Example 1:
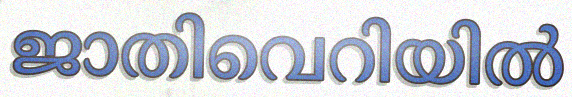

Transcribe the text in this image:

ജാതിവെറിയിൽ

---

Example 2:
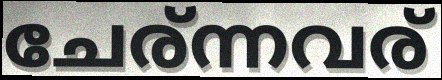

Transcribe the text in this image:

ചേര്ന്നവര്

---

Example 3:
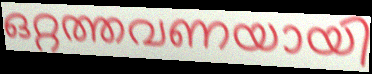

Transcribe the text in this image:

ഒറ്റത്തവണയായി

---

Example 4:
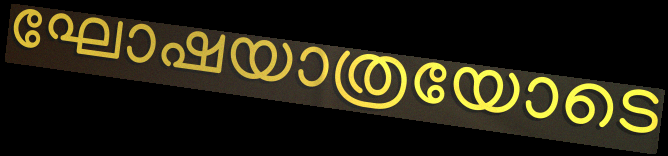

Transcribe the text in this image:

ഘോഷയാത്രയോടെ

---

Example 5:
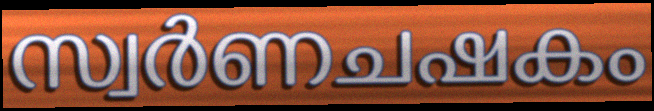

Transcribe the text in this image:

സ്വർണചഷകം